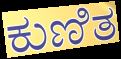
ಕುಣಿತ